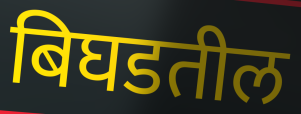
बिघडतील